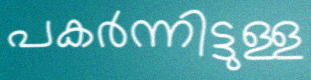
പകർന്നിട്ടുള്ള